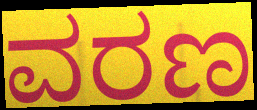
ವರಣ